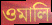
ওমালি